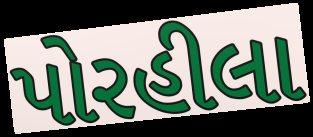
પોરહીલા